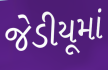
જેડીયૂમાં